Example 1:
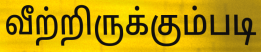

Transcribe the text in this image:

வீற்றிருக்கும்படி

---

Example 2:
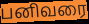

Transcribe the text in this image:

பனிவரை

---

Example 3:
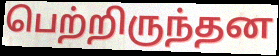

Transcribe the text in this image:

பெற்றிருந்தன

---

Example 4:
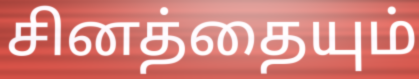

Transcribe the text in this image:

சினத்தையும்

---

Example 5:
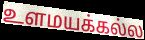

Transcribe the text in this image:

உளமயக்கல்ல